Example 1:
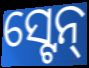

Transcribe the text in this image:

ସ୍ଟେନ୍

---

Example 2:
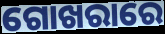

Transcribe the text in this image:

ଗୋଖରାରେ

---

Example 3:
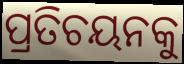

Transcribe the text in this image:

ପ୍ରତିଚୟନକୁ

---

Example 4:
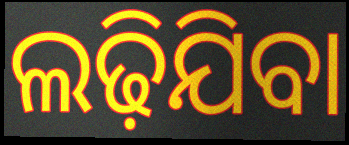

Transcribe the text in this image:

ଲଢ଼ିଯିବା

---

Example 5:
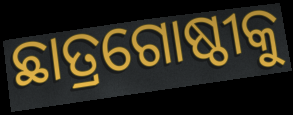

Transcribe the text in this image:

ଛାତ୍ରଗୋଷ୍ଠୀକୁ